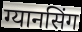
ग्यानसिंग